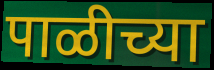
पाळीच्या